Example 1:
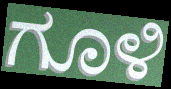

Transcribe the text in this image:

ಗೂಳಿ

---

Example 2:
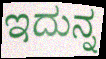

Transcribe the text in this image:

ಇದುನ್ನ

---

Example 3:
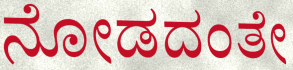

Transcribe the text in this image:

ನೋಡದಂತೇ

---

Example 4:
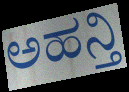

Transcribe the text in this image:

ಅಹನ್ತಿ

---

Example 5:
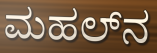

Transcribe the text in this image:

ಮಹಲ್‌ನ